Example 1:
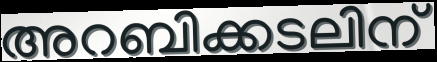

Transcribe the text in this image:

അറബിക്കടലിന്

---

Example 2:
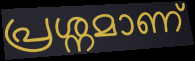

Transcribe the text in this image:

പ്രശ്നമാണ്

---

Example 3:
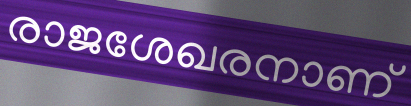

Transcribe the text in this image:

രാജശേഖരനാണ്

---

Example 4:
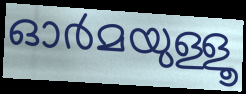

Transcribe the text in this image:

ഓർമയുള്ളൂ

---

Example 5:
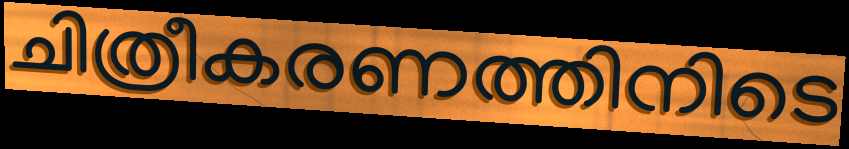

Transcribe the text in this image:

ചിത്രീകരണത്തിനിടെ